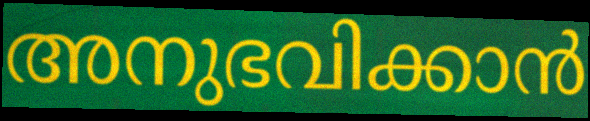
അനുഭവിക്കാൻ